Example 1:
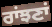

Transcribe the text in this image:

ਰਾਂਝਣਾਂ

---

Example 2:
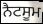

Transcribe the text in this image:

ਨੈਟਸੂਮ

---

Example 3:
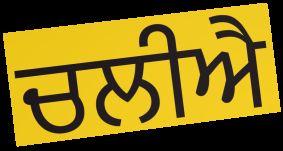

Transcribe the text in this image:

ਚਲੀਐ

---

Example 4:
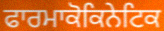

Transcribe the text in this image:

ਫਾਰਮਾਕੋਕਿਨੇਟਿਕ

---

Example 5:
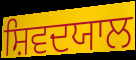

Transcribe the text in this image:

ਸ਼ਿਵਦਯਾਲ